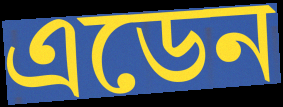
এডেন